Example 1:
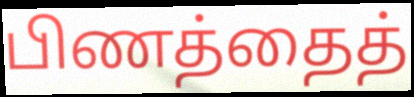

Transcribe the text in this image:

பிணத்தைத்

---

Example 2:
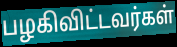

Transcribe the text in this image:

பழகிவிட்டவர்கள்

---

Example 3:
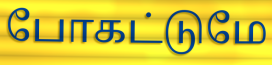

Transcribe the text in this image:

போகட்டுமே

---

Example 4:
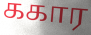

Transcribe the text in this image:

ககார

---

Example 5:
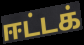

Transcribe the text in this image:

ஈட்டக்